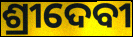
ଶ୍ରୀଦେବୀ